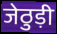
जेठुड़ी